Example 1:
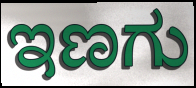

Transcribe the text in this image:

ಇಣಗು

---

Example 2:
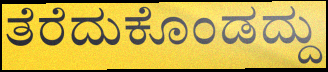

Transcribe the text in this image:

ತೆರೆದುಕೊಂಡದ್ದು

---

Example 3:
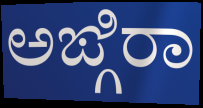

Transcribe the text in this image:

ಅಙ್ಗಿರಾ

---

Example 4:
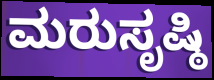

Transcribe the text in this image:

ಮರುಸೃಷ್ಠಿ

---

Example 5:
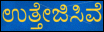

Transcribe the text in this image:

ಉತ್ತೇಜಿಸಿವೆ